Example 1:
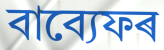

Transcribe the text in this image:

বাব্যেফৰ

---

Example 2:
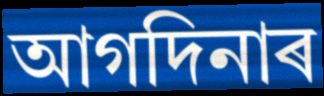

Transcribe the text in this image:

আগদিনাৰ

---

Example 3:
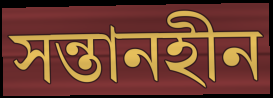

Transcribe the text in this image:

সন্তানহীন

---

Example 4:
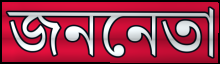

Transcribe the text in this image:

জননেতা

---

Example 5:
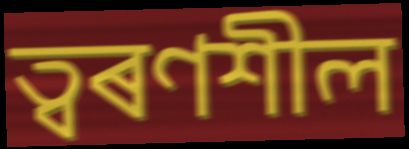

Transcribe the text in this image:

ত্বৰণশীল